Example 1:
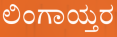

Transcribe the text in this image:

ಲಿಂಗಾಯ್ತರ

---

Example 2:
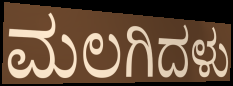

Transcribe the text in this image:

ಮಲಗಿದಳು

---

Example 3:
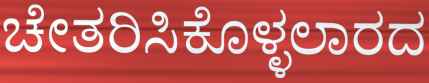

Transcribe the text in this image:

ಚೇತರಿಸಿಕೊಳ್ಳಲಾರದ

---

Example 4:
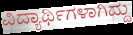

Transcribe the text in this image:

ವಿದ್ಯಾರ್ಥಿಗಳಾಗಿದ್ದು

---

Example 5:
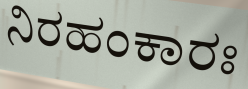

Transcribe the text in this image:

ನಿರಹಂಕಾರಃ